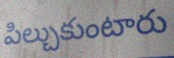
పిల్చుకుంటారు